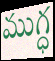
ముగ్ధ